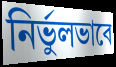
নির্ভুলভাবে